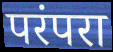
परंपरा